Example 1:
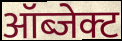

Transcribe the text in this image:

ऑब्‍जेक्‍ट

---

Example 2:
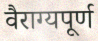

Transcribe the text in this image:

वैराग्यपूर्ण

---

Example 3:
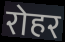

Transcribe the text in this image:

रोहर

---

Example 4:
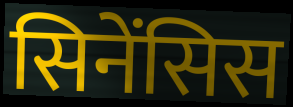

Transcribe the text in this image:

सिनेंसिस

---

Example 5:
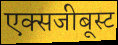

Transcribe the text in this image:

एक्सजीबूस्ट